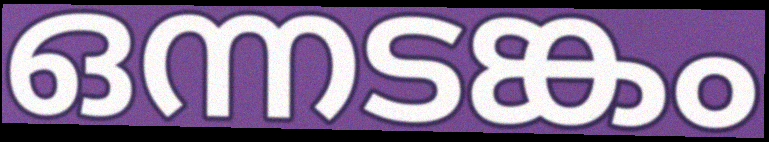
ഒന്നടങ്കം